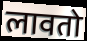
लावतो